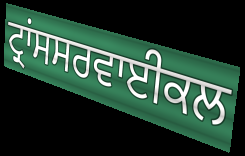
ਟ੍ਰਾਂਸਸਰਵਾਈਕਲ